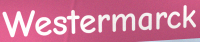
Westermarck